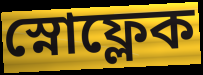
স্নোফ্লেক